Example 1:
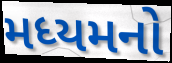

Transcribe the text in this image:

મધ્યમનો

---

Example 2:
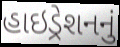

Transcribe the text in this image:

હાઇડ્રેશનનું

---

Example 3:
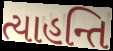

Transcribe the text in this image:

ત્યાહન્તિ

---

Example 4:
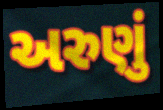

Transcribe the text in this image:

અરુણું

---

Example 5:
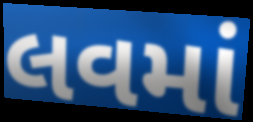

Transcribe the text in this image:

લવમાં